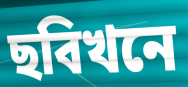
ছবিখনে